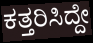
ಕತ್ತರಿಸಿದ್ದೇ